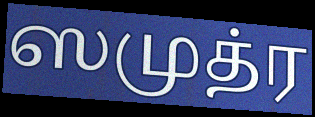
ஸமுத்ர